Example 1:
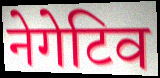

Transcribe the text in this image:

नेगेटिव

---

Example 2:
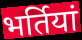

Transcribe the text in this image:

भर्तियां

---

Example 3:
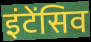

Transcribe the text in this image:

इंटेंसिव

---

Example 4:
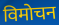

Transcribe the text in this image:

विमोचन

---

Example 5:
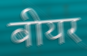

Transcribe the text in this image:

बीयर